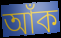
আঁক